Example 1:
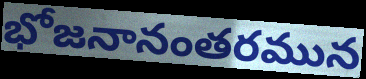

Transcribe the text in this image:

భోజనానంతరమున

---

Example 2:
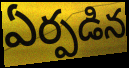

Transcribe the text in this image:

ఏర్పడిన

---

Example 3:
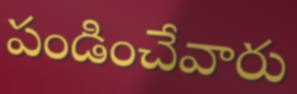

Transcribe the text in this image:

పండించేవారు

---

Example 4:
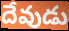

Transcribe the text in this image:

దేవుడు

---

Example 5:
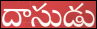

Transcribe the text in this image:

దాసుడు